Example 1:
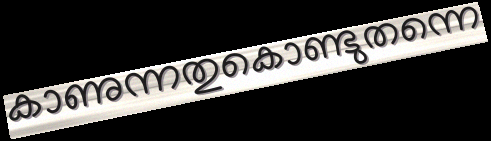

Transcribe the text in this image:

കാണുന്നതുകൊണ്ടുതന്നെ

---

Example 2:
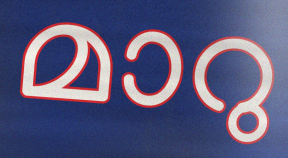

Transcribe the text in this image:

മാറു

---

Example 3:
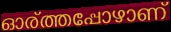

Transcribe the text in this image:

ഓര്ത്തപ്പോഴാണ്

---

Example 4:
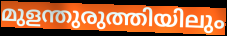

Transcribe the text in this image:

മുളന്തുരുത്തിയിലും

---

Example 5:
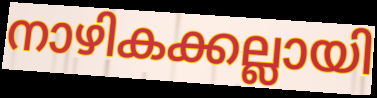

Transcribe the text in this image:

നാഴികക്കല്ലായി